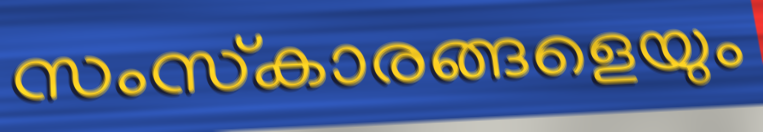
സംസ്‌കാരങ്ങളെയും